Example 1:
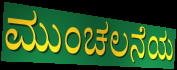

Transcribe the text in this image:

ಮುಂಚಲನೆಯ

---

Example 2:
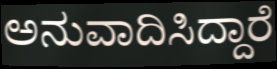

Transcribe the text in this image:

ಅನುವಾದಿಸಿದ್ದಾರೆ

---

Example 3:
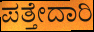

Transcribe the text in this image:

ಪತ್ತೇದಾರಿ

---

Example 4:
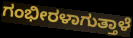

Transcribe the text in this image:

ಗಂಭೀರಳಾಗುತ್ತಾಳೆ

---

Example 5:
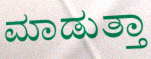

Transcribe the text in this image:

ಮಾಡುತ್ತಾ